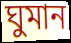
ঘুমান